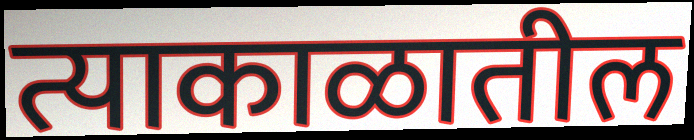
त्याकाळातील